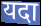
यदा